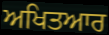
ਅਖਿਤਆਰ